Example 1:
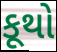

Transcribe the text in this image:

કૂથો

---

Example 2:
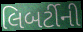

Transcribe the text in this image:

લિબર્ટીની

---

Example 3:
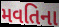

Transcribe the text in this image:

મવતિના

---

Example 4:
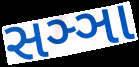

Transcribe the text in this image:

સઞ્ઞા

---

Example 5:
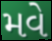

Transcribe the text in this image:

મવે